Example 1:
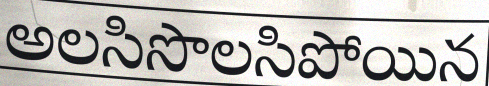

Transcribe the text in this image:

అలసిసొలసిపోయిన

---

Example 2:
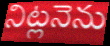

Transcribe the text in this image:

నిట్లనెను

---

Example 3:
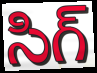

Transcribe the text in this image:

సిగ్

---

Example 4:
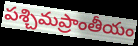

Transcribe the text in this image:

పశ్చిమప్రాంతీయం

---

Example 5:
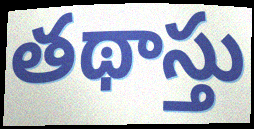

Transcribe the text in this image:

తథాస్తు